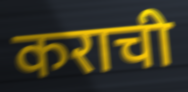
कराची